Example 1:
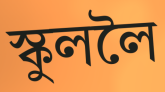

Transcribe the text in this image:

স্কুললৈ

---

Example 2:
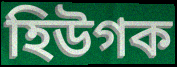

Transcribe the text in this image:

হিউগক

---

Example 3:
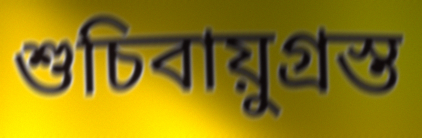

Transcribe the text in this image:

শুচিবায়ুগ্ৰস্ত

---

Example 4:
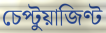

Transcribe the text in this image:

চেপ্টুয়াজিণ্ট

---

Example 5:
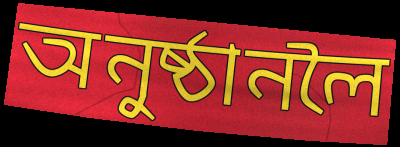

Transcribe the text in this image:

অনুষ্ঠানলৈ